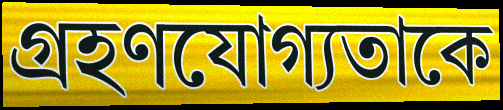
গ্রহণযোগ্যতাকে